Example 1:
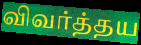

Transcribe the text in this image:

விவர்த்தய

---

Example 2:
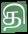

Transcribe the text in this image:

தி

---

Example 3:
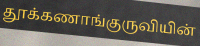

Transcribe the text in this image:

தூக்கணாங்குருவியின்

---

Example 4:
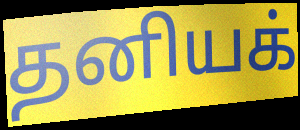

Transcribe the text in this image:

தனியக்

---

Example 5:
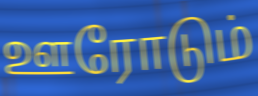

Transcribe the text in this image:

ஊரோடும்